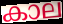
കാല